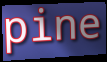
pine